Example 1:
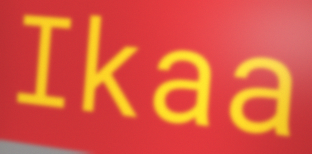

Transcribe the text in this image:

Ikaa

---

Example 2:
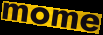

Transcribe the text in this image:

mome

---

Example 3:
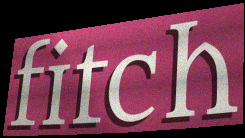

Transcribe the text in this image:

fitch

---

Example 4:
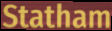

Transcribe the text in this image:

Statham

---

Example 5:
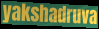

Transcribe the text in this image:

yakshadruva